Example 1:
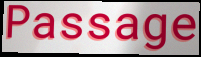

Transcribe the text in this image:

Passage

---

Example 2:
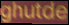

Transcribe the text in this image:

ghutde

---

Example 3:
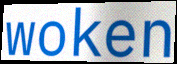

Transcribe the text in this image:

woken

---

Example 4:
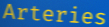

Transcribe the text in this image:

Arteries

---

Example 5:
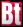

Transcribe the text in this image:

Bt